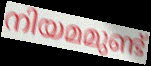
നിയമമുണ്ട്